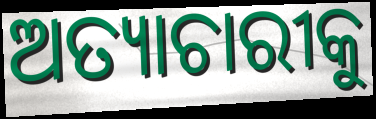
ଅତ୍ୟାଚାରୀକୁ